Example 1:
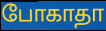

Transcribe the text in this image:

போகாதா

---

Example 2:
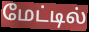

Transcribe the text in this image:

மேட்டில்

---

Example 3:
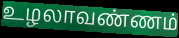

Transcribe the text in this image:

உழலாவண்ணம்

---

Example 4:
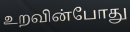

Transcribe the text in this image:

உறவின்போது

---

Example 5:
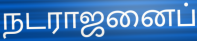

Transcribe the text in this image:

நடராஜனைப்